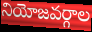
నియోజవర్గాల